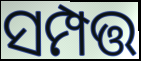
ସମ୍ପତ୍ତ